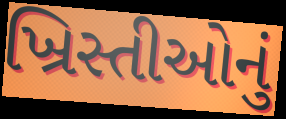
ખ્રિસ્તીઓનું